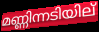
മണ്ണിന്നടിയില്